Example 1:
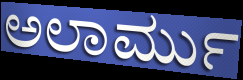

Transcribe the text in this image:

ಅಲಾರ್ಮು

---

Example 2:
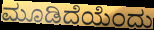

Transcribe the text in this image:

ಮೂಡಿದೆಯೆಂದು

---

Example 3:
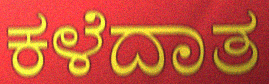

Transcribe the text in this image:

ಕಳೆದಾತ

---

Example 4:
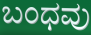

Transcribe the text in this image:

ಬಂಧವು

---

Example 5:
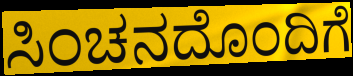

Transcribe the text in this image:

ಸಿಂಚನದೊಂದಿಗೆ